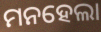
ମନହେଲା